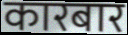
कारबार